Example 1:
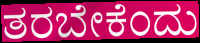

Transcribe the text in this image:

ತರಬೇಕೆಂದು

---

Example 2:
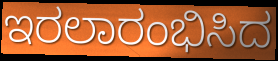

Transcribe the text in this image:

ಇರಲಾರಂಭಿಸಿದ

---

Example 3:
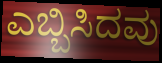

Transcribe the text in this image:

ಎಬ್ಬಿಸಿದವು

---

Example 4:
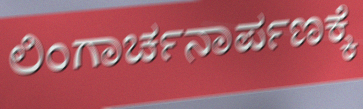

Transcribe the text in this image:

ಲಿಂಗಾರ್ಚನಾರ್ಪಣಕ್ಕೆ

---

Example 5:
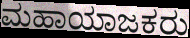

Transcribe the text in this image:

ಮಹಾಯಾಜಕರು